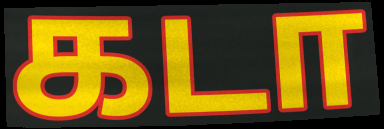
கடா